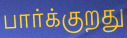
பார்க்குறது